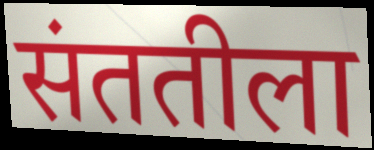
संततीला